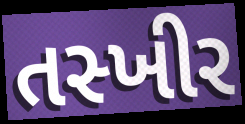
તસ્ખીર